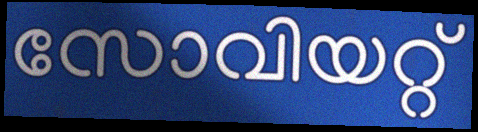
സോവിയറ്റ്